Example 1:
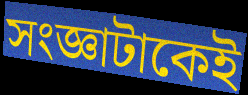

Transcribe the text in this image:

সংজ্ঞাটাকেই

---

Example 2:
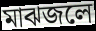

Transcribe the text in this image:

মাঝজলে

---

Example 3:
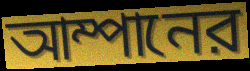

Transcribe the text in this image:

আম্পানের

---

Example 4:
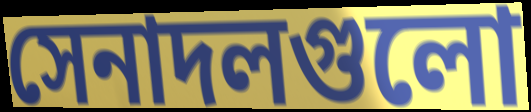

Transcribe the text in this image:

সেনাদলগুলো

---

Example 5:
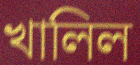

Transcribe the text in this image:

খালিল